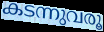
കടന്നുവരൂ